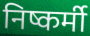
निष्कर्मी